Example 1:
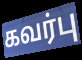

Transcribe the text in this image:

கவர்பு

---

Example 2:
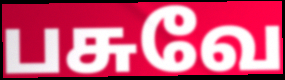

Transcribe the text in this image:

பசுவே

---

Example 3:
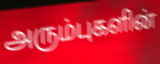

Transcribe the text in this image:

அரும்புகளின்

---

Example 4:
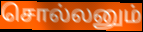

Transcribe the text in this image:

சொல்லனும்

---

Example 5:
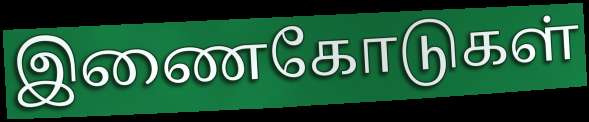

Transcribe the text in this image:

இணைகோடுகள்